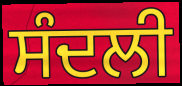
ਸੰਦਲੀ